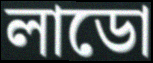
লাডো